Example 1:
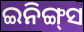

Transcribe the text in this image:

ଇନିଙ୍ଗ୍‌ସ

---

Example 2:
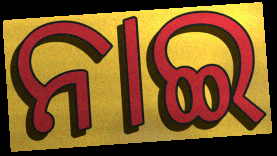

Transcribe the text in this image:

ନାଇ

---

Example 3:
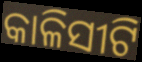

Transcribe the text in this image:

କାଳିସୀଟି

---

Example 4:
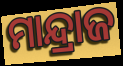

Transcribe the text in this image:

ମାନ୍ଦ୍ରାଜ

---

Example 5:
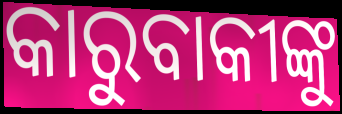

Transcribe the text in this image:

କାରୁବାକୀଙ୍କୁ